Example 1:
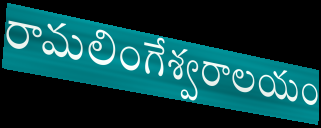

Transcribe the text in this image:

రామలింగేశ్వరాలయం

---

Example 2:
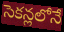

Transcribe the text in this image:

సెకన్లలోనే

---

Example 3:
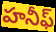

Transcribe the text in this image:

హనీఫ్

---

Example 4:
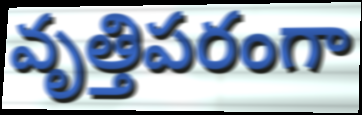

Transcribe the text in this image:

వృత్తిపరంగా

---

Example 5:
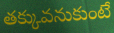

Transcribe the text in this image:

తక్కువనుకుంటే